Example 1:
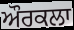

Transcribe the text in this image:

ਔਰਕਲਾ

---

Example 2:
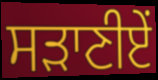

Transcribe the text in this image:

ਸੜਾਣੀਏਂ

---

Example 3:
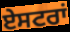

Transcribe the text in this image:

ਏਸਟਰਾਂ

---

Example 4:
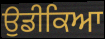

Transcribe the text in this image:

ਉਡੀਕਿਆ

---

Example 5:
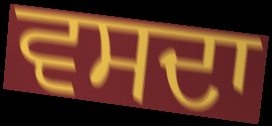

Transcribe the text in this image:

ਵਸਦਾ